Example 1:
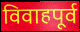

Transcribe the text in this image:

विवाहपूर्व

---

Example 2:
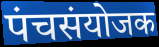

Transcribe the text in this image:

पंचसंयोजक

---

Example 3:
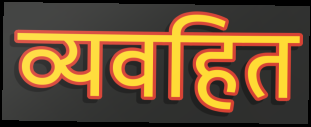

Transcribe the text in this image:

व्यवहित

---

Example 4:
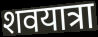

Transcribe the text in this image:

शवयात्रा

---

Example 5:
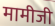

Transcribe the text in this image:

मामीजी